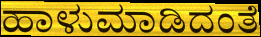
ಹಾಳುಮಾಡಿದಂತೆ